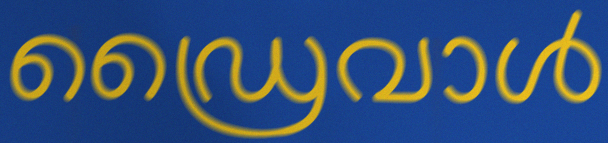
ഡ്രൈവാൾ